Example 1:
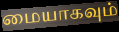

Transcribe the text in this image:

மையாகவும்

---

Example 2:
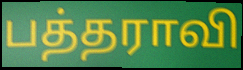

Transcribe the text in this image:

பத்தராவி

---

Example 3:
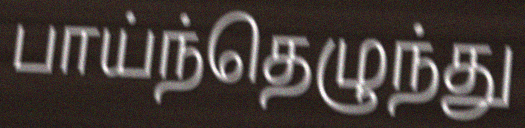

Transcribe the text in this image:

பாய்ந்தெழுந்து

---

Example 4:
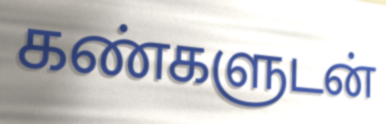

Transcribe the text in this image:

கண்களுடன்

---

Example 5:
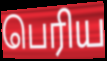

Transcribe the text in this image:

பெரிய